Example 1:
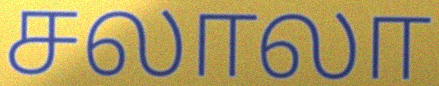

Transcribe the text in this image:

சலாலா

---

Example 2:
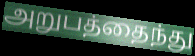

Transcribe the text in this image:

அறுபத்தைந்து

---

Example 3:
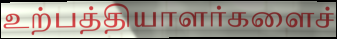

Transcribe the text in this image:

உற்பத்தியாளர்களைச்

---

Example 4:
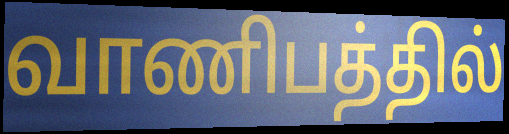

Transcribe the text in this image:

வாணிபத்தில்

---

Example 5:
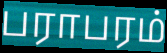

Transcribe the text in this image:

பராபரம்